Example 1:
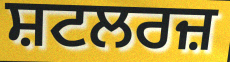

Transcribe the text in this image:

ਸ਼ਟਲਰਜ਼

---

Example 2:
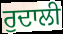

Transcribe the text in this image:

ਰੁਦਾਲੀ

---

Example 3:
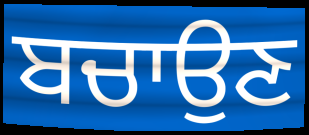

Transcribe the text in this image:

ਬਚਾਉਣ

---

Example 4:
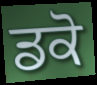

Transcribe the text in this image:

ਡਕੋ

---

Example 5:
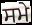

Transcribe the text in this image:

ਸਮੇ